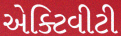
એક્ટિવીટી